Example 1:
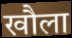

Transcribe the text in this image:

खौला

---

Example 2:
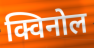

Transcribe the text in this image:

क्विनोल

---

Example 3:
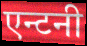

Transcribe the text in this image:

एन्टनी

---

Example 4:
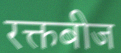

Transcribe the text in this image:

रक्तबीज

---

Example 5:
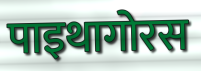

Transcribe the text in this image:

पाइथागोरस